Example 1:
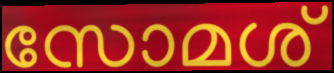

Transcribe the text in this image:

സോമശ്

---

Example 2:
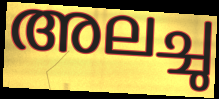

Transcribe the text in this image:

അലച്ചു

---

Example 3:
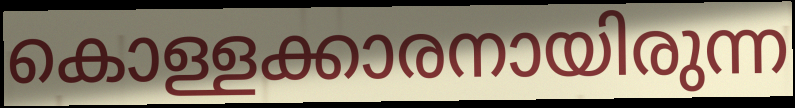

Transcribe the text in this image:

കൊള്ളക്കാരനായിരുന്ന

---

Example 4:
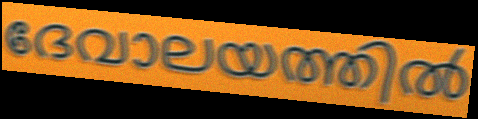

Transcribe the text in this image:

ദേവാലയത്തിൽ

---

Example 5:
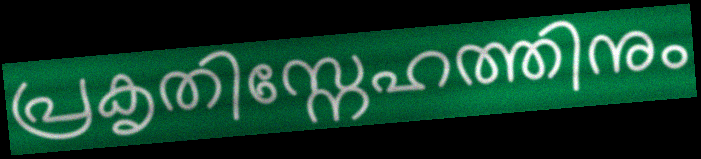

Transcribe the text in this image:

പ്രകൃതിസ്നേഹത്തിനും